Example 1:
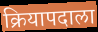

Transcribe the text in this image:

क्रियापदाला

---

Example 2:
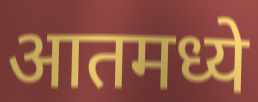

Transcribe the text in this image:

आतमध्ये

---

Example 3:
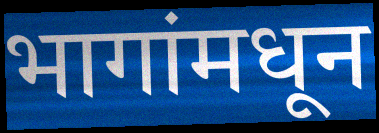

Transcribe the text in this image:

भागांमधून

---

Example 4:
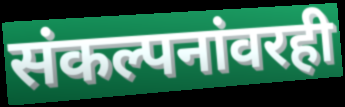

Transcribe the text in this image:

संकल्पनांवरही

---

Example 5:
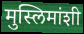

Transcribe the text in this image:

मुस्लिमांशी